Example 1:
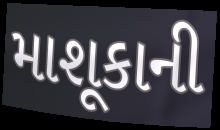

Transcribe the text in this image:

માશૂકાની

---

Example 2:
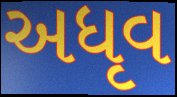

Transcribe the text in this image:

અધૃવ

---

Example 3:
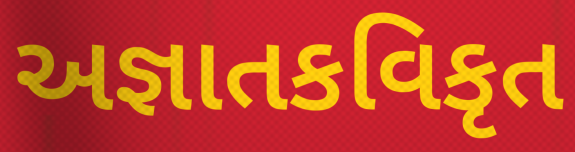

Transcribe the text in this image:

અજ્ઞાતકવિકૃત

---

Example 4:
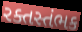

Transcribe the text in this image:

રક્તસ્તંભક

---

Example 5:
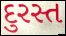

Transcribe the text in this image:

દુરસ્ત